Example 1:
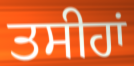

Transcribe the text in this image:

ਤਸੀਹਾਂ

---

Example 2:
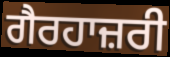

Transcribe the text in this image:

ਗੈਰਹਾਜ਼ਰੀ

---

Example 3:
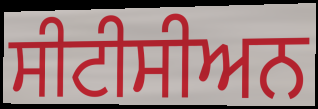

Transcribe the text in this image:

ਸੀਟੀਸੀਅਨ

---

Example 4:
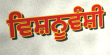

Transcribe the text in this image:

ਵਿਸ਼ਨੂਵੰਸ਼ੀ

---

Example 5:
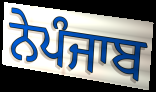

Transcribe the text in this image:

ਨੇਪੰਜਾਬ